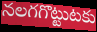
నలగగొట్టుటకు